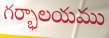
గర్భాలయము